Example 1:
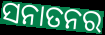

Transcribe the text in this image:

ସନାତନର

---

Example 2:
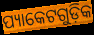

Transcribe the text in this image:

ପ୍ୟାକେଟଗୁଡ଼ିକ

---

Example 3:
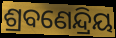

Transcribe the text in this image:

ଶ୍ରବଣେନ୍ଦ୍ରିୟ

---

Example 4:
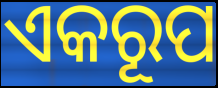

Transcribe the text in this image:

ଏକରୂପ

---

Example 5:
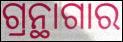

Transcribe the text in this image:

ଗ୍ରନ୍ଥାଗାର